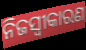
ନିଜସ୍ବୀକାରଣ